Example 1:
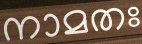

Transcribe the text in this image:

നാമതഃ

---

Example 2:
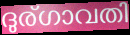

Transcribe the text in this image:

ദുര്ഗാവതി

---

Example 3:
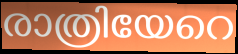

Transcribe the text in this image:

രാത്രിയേറെ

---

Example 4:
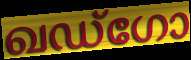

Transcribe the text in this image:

ഖഡ്ഗോ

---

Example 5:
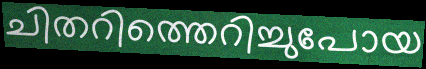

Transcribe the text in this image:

ചിതറിത്തെറിച്ചുപോയ